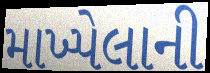
માખ્પેલાની